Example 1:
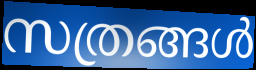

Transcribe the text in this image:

സത്രങ്ങൾ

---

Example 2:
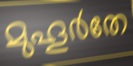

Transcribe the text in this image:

മുഹൂർതേ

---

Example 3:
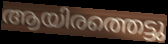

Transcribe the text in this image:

ആയിരത്തെട്ടു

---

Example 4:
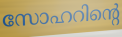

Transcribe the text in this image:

സോഹറിന്റെ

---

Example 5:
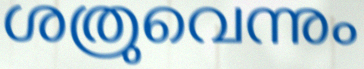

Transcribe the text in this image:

ശത്രുവെന്നും